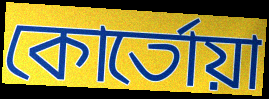
কোর্তোয়া